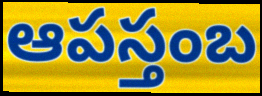
ఆపస్తంబ